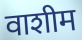
वाशीम